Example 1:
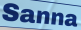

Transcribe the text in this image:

Sanna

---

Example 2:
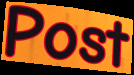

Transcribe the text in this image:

Post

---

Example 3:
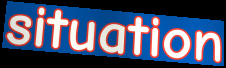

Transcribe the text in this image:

situation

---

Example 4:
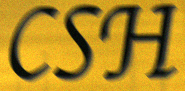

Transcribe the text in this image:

CSH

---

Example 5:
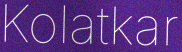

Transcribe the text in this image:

Kolatkar